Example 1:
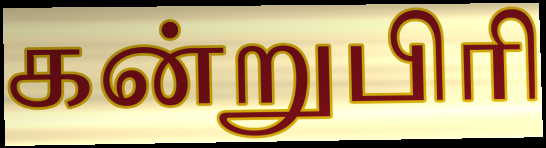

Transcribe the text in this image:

கன்றுபிரி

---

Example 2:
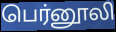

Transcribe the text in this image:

பெர்னூலி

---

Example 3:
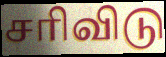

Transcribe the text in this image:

சரிவிடு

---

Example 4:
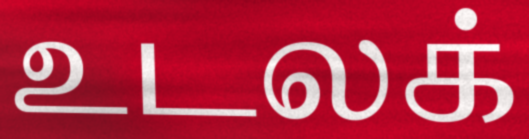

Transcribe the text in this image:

உடலக்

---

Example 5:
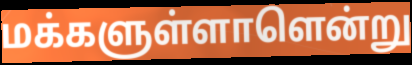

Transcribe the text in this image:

மக்களுள்ளாளென்று